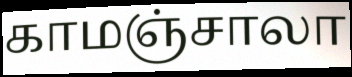
காமஞ்சாலா